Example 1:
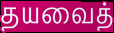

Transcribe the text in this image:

தயவைத்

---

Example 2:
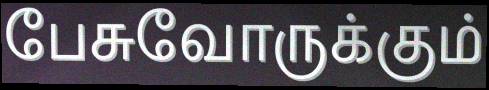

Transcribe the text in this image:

பேசுவோருக்கும்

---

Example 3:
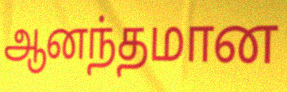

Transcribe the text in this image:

ஆனந்தமான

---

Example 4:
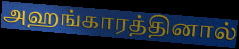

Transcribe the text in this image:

அஹங்காரத்தினால்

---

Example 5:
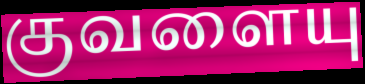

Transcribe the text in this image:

குவளையு